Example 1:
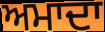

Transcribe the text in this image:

ਅਮਾਦਾ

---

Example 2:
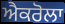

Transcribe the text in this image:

ਐਕਰੋਲਾ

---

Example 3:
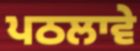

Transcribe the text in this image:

ਪਠਲਾਵੇ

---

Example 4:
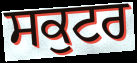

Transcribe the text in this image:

ਸਕੁਟਰ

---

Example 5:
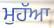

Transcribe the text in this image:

ਮੁਹੱਆ